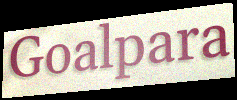
Goalpara